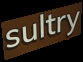
sultry